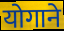
योगाने